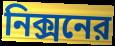
নিক্সনের